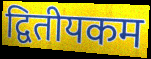
द्वितीयकम